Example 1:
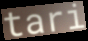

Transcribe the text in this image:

tari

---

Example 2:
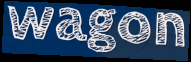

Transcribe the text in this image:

wagon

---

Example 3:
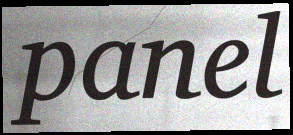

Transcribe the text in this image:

panel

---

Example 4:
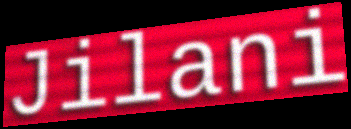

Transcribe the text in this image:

Jilani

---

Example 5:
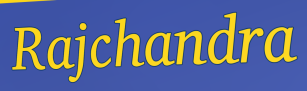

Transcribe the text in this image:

Rajchandra